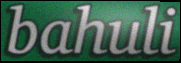
bahuli